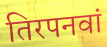
तिरपनवां